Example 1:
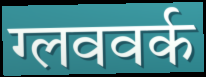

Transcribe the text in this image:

ग्लववर्क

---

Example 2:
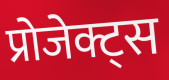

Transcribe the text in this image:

प्रोजेक्ट्स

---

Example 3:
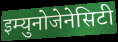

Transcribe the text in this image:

इम्युनोजेनेसिटी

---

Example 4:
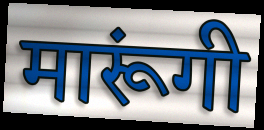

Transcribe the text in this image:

मारूंगी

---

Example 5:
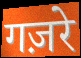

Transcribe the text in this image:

गज़रे